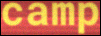
camp